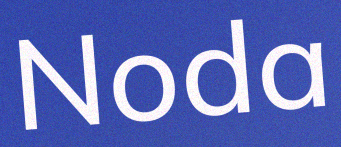
Noda